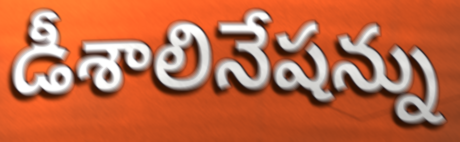
డీశాలినేషన్ను